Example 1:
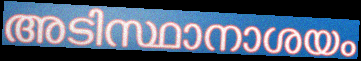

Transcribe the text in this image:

അടിസ്ഥാനാശയം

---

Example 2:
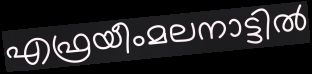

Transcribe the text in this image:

എഫ്രയീംമലനാട്ടിൽ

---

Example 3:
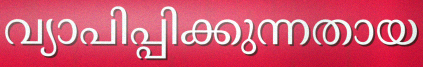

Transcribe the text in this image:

വ്യാപിപ്പിക്കുന്നതായ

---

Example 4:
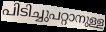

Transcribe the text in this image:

പിടിച്ചുപറ്റാനുള്ള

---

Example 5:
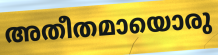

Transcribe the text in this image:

അതീതമായൊരു